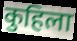
कुहिला